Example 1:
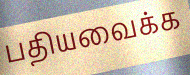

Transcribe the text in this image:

பதியவைக்க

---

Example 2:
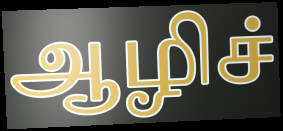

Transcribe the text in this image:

ஆழிச்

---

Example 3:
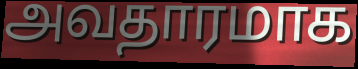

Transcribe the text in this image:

அவதாரமாக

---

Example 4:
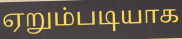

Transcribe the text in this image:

ஏறும்படியாக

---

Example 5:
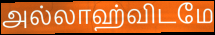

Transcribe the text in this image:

அல்லாஹ்விடமே